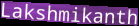
Lakshmikanth